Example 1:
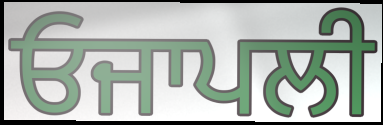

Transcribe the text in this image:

ਓਜਾਪਲੀ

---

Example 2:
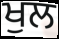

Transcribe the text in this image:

ਖੁਲ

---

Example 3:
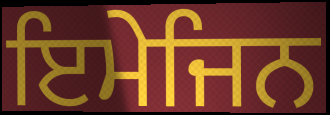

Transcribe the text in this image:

ਇਮੇਜਿਨ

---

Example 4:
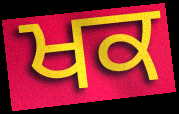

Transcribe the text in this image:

ਖਕ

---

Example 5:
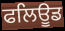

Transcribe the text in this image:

ਫਲਿਊਡ